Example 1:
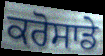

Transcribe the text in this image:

ਕਰੋਸਾਡੇ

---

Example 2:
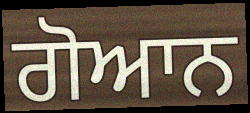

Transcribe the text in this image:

ਗੋਆਨ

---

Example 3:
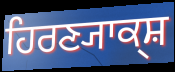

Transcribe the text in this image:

ਹਿਰਣ੍ਯਾਕ੍ਸ਼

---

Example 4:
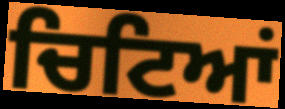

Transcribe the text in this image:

ਚਿਟਿਆਂ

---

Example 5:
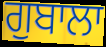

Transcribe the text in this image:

ਗੁਬਾਲਾ